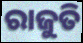
ରାଜୁତି